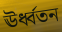
ঊর্ধ্বতন